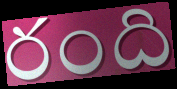
రంది